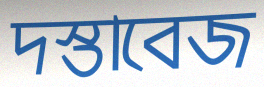
দস্তাবেজ